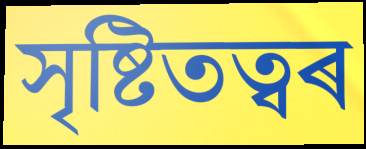
সৃষ্টিতত্বৰ